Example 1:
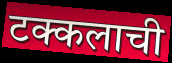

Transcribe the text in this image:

टक्कलाची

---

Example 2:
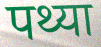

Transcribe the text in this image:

पथ्या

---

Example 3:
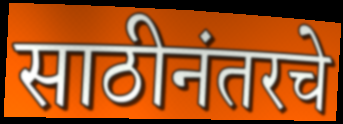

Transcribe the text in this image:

साठीनंतरचे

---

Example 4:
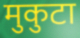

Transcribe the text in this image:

मुकुटा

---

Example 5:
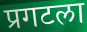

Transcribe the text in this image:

प्रगटला